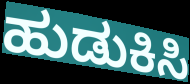
ಹುಡುಕಿಸಿ